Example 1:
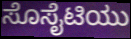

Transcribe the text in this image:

ಸೊಸೈಟಿಯು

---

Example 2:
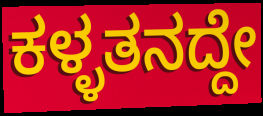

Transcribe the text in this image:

ಕಳ್ಳತನದ್ದೇ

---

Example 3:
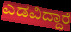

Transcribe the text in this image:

ಎಡವಿದ್ದಾರೆ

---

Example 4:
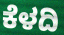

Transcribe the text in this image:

ಕೆಳದಿ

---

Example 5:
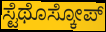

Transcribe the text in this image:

ಸ್ಟೆಥೊಸ್ಕೋಪ್